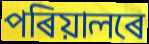
পৰিয়ালৰে